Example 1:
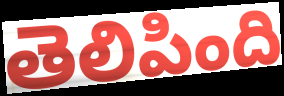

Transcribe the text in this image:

తెలిపింది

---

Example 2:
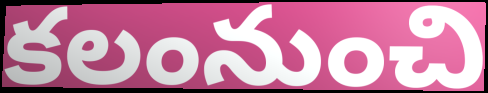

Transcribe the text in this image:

కలంనుంచి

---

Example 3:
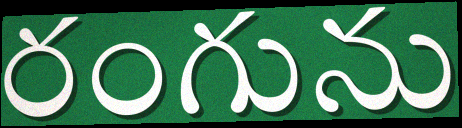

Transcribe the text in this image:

రంగును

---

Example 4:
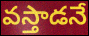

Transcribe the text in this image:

వస్తాడనే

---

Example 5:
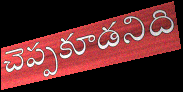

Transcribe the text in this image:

చెప్పకూడనిది